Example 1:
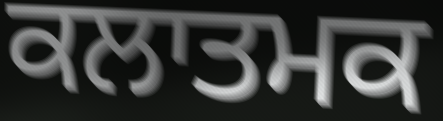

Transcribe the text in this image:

ਕਲਾਤਮਕ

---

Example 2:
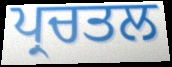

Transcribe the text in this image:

ਪ੍ਰਚਤਲ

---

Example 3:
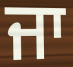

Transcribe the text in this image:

ਜਾ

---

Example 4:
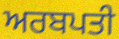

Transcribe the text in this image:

ਅਰਬਪਤੀ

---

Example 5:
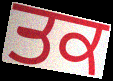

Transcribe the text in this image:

ਤਕ